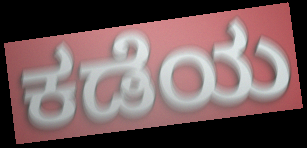
ಕಡೆಯ